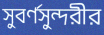
সুবর্ণসুন্দরীর